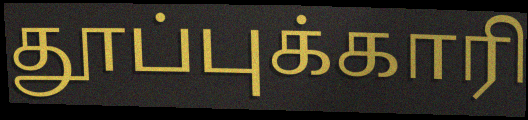
தூப்புக்காரி